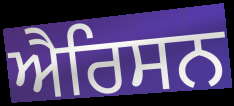
ਐਰਿਸਨ